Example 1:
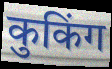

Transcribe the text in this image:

कुकिंग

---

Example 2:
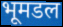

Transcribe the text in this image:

भूमडल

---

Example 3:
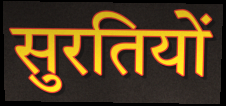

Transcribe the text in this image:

सुरतियों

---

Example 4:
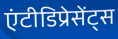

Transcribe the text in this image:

एंटीडिप्रेसेंट्स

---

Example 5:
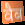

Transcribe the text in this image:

वैब